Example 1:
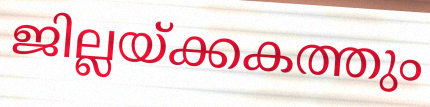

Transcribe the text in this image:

ജില്ലയ്ക്കകത്തും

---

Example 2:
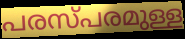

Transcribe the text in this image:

പരസ്പരമുള്ള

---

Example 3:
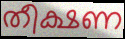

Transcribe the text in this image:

തീക്ഷണ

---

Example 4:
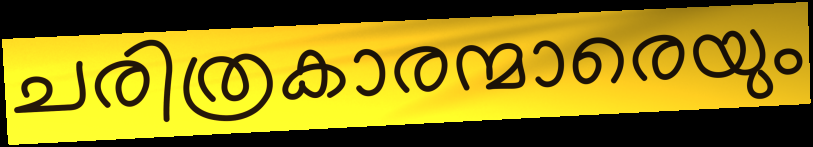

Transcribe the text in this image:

ചരിത്രകാരന്മാരെയും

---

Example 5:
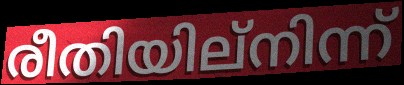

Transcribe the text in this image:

രീതിയില്നിന്ന്